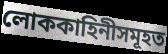
লোককাহিনীসমূহত